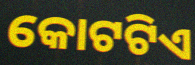
କୋଟଟିଏ